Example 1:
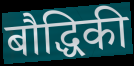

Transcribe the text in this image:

बौद्धिकी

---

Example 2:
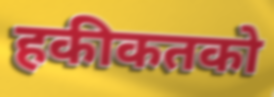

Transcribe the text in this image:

हकीकतको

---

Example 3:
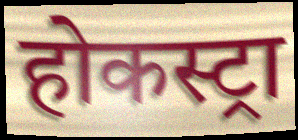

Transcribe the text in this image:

होकस्ट्रा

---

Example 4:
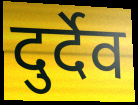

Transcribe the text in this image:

दुर्देव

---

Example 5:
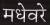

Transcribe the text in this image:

मधेवरे